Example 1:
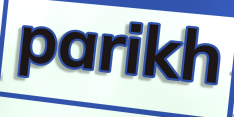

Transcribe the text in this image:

parikh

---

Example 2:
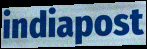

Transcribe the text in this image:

indiapost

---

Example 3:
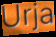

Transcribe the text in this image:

Urja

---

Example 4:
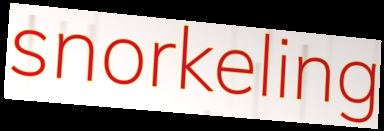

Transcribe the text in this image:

snorkeling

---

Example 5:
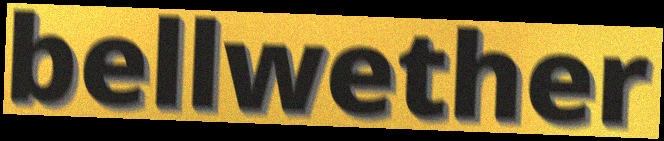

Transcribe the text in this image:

bellwether